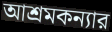
আশ্রমকন্যার